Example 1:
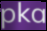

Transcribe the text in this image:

pka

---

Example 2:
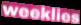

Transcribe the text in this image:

weeklies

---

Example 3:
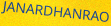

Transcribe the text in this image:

JANARDHANRAO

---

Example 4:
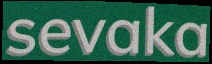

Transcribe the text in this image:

sevaka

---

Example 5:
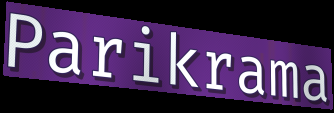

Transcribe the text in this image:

Parikrama